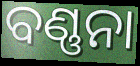
ବଣ୍ଣନା